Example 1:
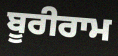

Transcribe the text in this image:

ਬੂਰੀਰਾਮ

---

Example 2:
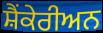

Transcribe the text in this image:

ਸ਼ੈਂਕੇਰੀਅਨ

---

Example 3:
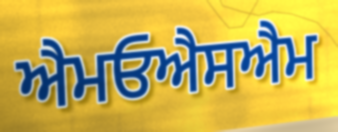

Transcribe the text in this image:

ਐਮਓਐਸਐਮ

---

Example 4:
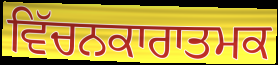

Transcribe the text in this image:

ਵਿੱਚਨਕਾਰਾਤਮਕ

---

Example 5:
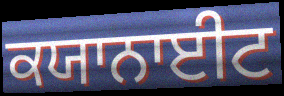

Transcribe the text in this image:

ਕਯਾਨਾਈਟ